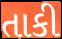
તાકી